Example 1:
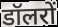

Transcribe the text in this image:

डॉलरों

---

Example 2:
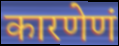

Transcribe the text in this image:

कारणेणं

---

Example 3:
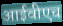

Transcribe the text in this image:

आईवीएच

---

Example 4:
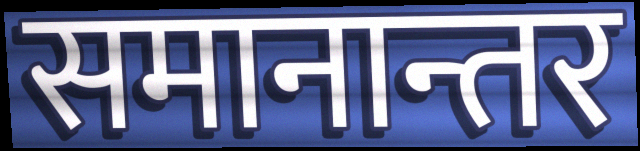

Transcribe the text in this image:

समानान्तर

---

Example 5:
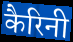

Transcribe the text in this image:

कैरिनी